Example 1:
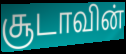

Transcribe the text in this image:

சூடாவின்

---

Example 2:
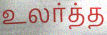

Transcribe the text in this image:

உலர்த்த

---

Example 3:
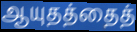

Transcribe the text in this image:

ஆயுதத்தைத்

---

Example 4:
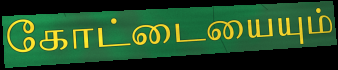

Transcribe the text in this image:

கோட்டையையும்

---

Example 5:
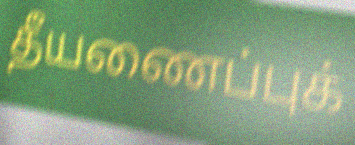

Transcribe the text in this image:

தீயணைப்புக்